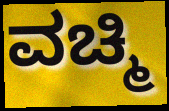
ವಚ್ಮಿ